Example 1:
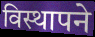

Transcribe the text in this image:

विस्थापने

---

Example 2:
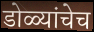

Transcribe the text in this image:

डोळ्यांचेच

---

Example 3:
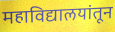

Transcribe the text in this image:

महाविद्यालयांतून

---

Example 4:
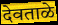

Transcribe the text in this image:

देवताळे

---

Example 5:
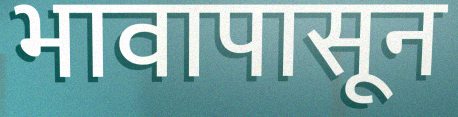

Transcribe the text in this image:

भावापासून